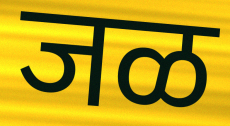
जळ